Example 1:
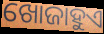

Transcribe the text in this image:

ଖୋଜାହୁଏ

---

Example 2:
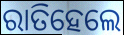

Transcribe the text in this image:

ରାତିହେଲେ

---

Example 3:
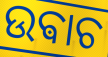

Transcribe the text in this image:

ଉଵାଚ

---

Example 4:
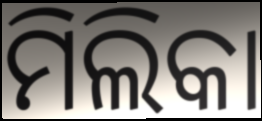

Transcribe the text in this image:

ମିଲିକା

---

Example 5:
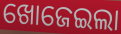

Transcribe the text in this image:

ଖୋଜେଇଲା